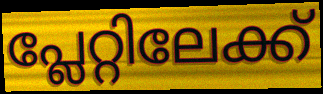
പ്ലേറ്റിലേക്ക്